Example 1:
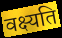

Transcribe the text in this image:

वक्ष्यति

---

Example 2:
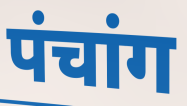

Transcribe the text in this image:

पंचांग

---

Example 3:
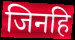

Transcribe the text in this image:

जिनहि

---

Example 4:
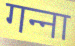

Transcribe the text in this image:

गन्‍ना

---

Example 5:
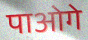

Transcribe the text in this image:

पाओगे